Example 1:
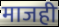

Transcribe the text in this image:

माजही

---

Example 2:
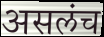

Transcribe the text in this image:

असलंच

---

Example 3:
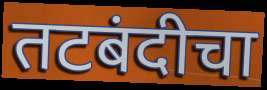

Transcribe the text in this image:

तटबंदीचा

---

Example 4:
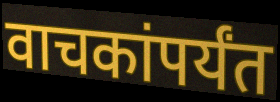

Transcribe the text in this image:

वाचकांपर्यंत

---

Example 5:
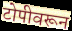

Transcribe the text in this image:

टोपीवरून